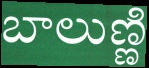
బాలుణ్ణి